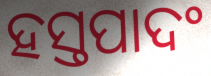
ହସ୍ତପାଦଂ